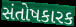
સંતોષકારક